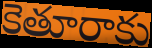
కెతూరాకు